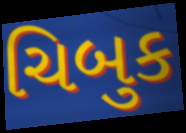
ચિબુક